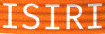
ISIRI